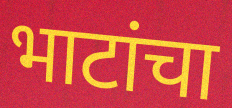
भाटांचा